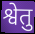
श्वेतु